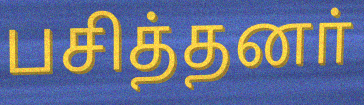
பசித்தனர்